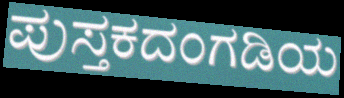
ಪುಸ್ತಕದಂಗಡಿಯ